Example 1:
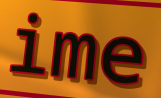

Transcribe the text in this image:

ime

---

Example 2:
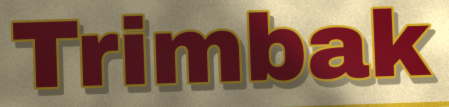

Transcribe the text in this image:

Trimbak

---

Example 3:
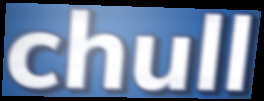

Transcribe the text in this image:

chull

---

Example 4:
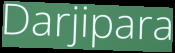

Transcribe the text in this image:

Darjipara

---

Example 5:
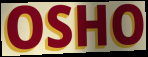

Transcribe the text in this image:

OSHO